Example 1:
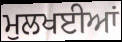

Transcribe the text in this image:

ਮੁਲਖਈਆਂ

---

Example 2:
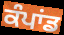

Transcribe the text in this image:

ਕੰਪਾਂਡ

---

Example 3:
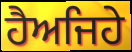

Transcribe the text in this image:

ਹੈਅਜਿਹੇ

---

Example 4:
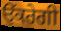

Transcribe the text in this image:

ਉੱਕਰੇਗੀ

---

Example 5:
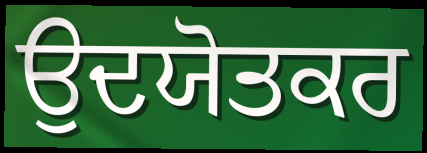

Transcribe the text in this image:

ਉਦਯੋਤਕਰ